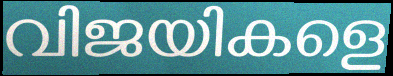
വിജയികളെ